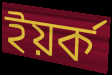
ইয়ৰ্ক